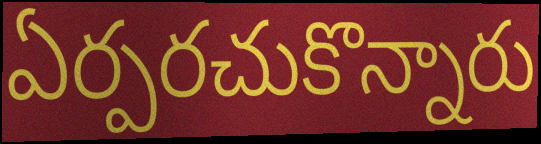
ఏర్పరచుకొన్నారు